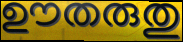
ഊതരുതു